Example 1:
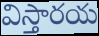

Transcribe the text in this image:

విస్తారయ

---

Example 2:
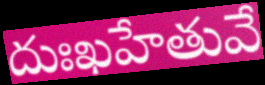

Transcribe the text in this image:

దుఃఖహేతువే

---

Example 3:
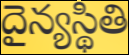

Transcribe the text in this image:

దైన్యస్థితి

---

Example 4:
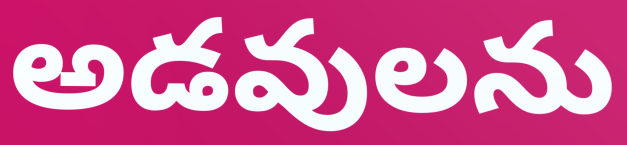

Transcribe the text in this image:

అడవులను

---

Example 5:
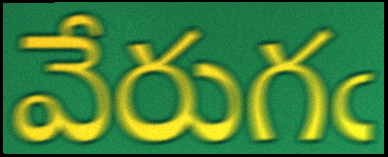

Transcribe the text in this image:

వేరుగఁ